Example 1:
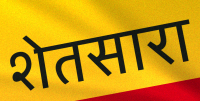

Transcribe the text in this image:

शेतसारा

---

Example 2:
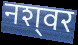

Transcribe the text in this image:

नश्वर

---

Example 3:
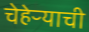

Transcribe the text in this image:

चेहेऱ्याची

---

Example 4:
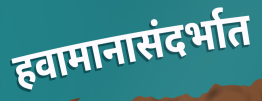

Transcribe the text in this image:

हवामानासंदर्भात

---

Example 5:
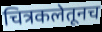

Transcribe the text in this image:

चित्रकलेतूनच